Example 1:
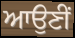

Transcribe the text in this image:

ਆਉਣੀੰ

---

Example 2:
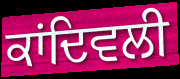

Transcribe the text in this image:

ਕਾਂਦਿਵਲੀ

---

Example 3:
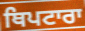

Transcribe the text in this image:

ਥਿਪਟਾਰਾ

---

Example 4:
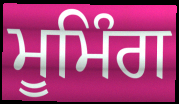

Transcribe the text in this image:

ਮੂਮਿੰਗ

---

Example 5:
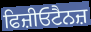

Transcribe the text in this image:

ਫਿਜ਼ੀਓਟੈਨਜ਼